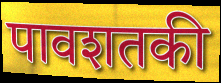
पावशतकी